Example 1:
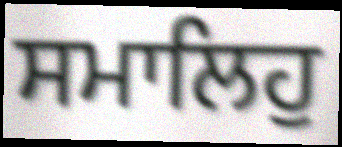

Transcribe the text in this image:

ਸਮਾਲਿਹੁ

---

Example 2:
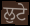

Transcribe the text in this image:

ਲੁਟੇ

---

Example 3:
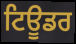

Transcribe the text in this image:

ਟਿਊਡਰ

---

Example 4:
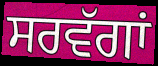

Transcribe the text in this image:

ਸਰਵੱਗਾਂ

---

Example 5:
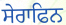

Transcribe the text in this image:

ਸੇਰਾਫਿਨ